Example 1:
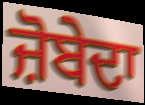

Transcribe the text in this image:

ਜ਼ੋਬੇਦਾ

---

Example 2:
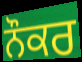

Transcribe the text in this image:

ਨੌਕਰ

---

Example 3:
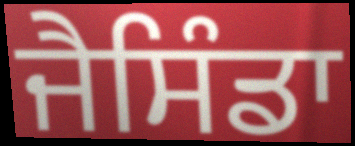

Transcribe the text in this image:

ਜੈਸਿੰਡਾ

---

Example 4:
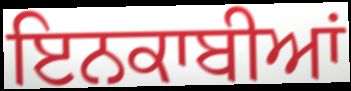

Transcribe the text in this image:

ਇਨਕਾਬੀਆਂ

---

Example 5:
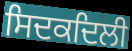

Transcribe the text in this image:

ਸਿਦਕਦਿਲੀ